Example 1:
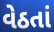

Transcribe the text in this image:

વેઠતાં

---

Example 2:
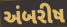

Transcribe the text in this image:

અંબરીષ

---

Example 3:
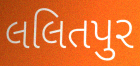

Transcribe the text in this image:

લલિતપુર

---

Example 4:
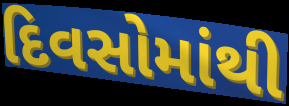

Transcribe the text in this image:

દિવસોમાંથી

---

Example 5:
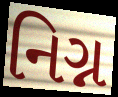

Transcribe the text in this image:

નિગ્ન